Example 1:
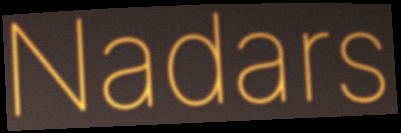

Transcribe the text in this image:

Nadars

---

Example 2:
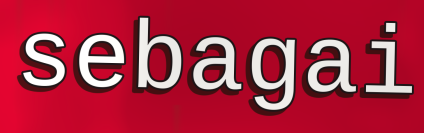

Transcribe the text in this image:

sebagai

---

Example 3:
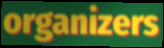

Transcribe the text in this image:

organizers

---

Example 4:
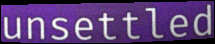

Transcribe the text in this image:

unsettled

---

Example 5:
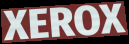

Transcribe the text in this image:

XEROX